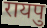
रायपु